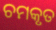
ଚମକୃତ